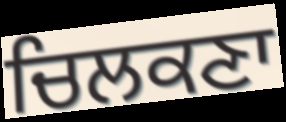
ਚਿਲਕਣਾ